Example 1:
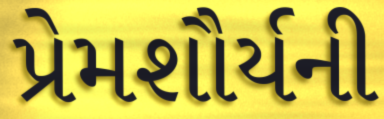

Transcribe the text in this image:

પ્રેમશૌર્યની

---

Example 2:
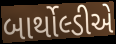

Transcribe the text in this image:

બાર્થોલ્ડીએ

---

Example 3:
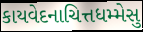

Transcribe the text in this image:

કાયવેદનાચિત્તધમ્મેસુ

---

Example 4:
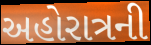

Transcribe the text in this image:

અહોરાત્રની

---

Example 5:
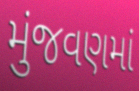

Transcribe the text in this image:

મુંજવણમાં